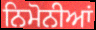
ਨਿਮੋਨੀਆਂ